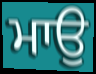
ਮਾਉ